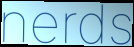
nerds